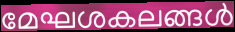
മേഘശകലങ്ങൾ